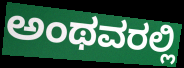
ಅಂಥವರಲ್ಲಿ